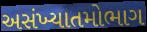
અસંખ્યાતમોભાગ